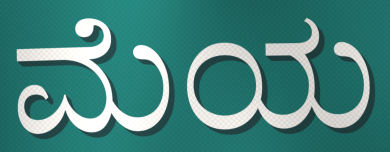
ಮೆಯ